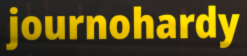
journohardy